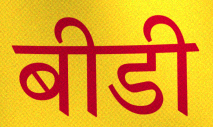
बीडी